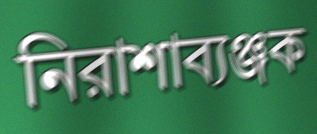
নিরাশাব্যঞ্জক